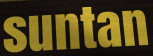
suntan